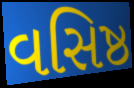
વસિષ્ઠ